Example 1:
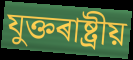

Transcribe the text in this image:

যুক্তৰাষ্ট্ৰীয়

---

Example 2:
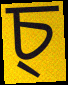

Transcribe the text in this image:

চ্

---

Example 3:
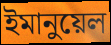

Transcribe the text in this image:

ইমানুয়েল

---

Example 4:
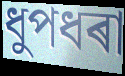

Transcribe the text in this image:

ধুপধৰা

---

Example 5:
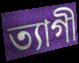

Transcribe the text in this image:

ত্যাগী